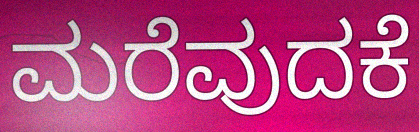
ಮರೆವುದಕೆ